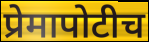
प्रेमापोटीच